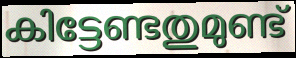
കിട്ടേണ്ടതുമുണ്ട്